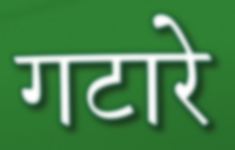
गटारे